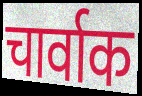
चार्वाक